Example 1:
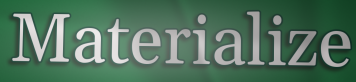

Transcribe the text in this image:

Materialize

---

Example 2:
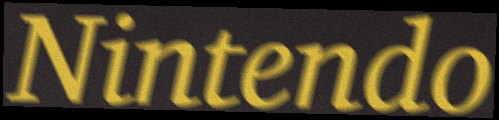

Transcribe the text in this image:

Nintendo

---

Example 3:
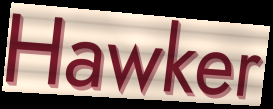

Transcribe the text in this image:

Hawker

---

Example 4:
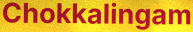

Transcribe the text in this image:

Chokkalingam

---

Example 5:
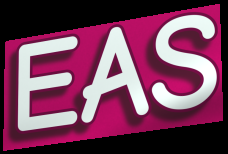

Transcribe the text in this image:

EAS